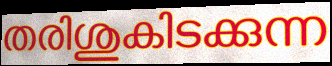
തരിശുകിടക്കുന്ന